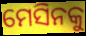
ମେସିନକୁ